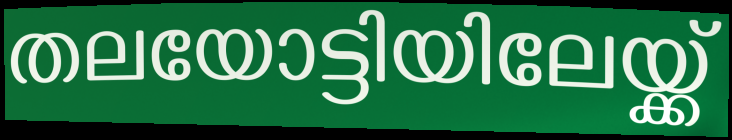
തലയോട്ടിയിലേയ്ക്ക്